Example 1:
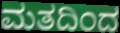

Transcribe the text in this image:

ಮತದಿಂದ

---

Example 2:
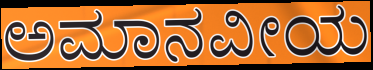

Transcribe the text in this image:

ಅಮಾನವೀಯ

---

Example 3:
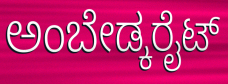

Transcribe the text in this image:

ಅಂಬೇಡ್ಕರೈಟ್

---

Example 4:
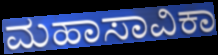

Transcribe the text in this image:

ಮಹಾಸಾವಿಕಾ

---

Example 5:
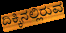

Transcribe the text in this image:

ದಿಕ್ಕಿನಲ್ಲಿರುವ